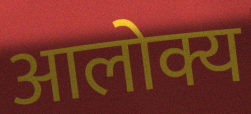
आलोक्य